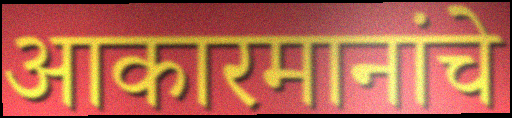
आकारमानांचे